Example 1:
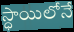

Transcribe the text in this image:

స్ధాయిలోనే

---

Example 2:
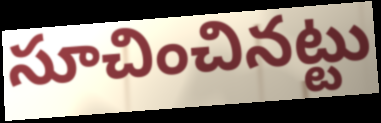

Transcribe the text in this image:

సూచించినట్టు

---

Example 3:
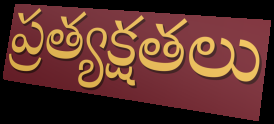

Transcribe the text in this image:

ప్రత్యక్షతలు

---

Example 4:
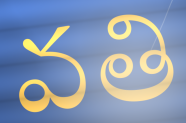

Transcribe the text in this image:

వతి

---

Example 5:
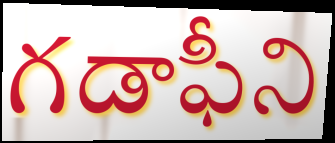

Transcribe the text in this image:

గడాఫీని